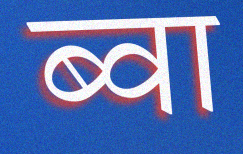
ब्वा